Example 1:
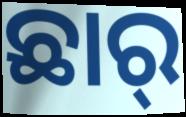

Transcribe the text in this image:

ଛାର୍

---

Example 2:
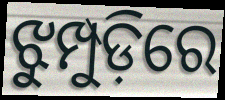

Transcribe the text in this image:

ଝୁମ୍ପୁଡ଼ିରେ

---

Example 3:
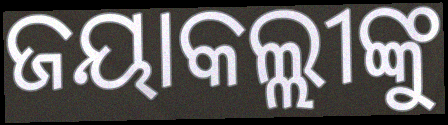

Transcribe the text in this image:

ଜୟାକଲ୍ଲୀଙ୍କୁ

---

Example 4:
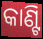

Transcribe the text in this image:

କାଣ୍ଟି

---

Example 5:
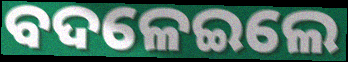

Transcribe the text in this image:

ବଦଳେଇଲେ